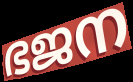
ഭജന